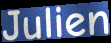
Julien